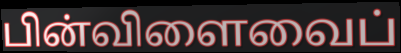
பின்விளைவைப்